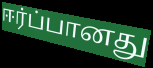
ஈர்ப்பானது